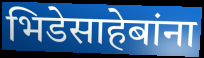
भिडेसाहेबांना